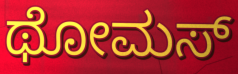
ಥೋಮಸ್